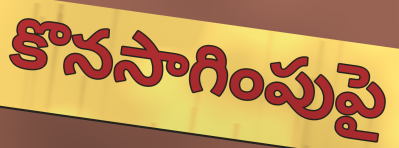
కొనసాగింపుపై